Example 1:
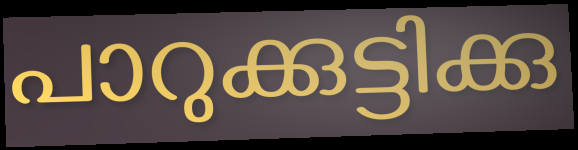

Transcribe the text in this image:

പാറുക്കുട്ടിക്കു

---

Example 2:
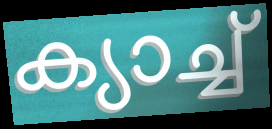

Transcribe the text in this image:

ക്യാച്ച്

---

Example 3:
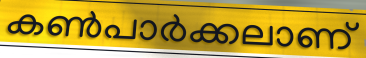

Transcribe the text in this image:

കൺപാർക്കലാണ്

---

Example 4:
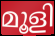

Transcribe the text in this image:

മൂളി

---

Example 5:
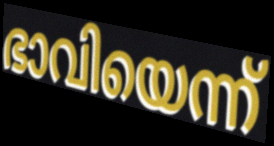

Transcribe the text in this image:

ഭാവിയെന്ന്